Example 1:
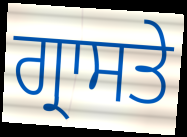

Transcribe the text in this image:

ਗ੍ਰਾਸਤੇ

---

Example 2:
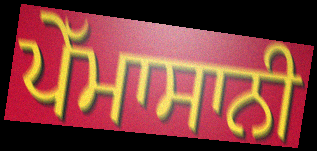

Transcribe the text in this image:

ਪੇੱਮਾਸਾਨੀ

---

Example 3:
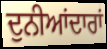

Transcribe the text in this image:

ਦੁਨੀਆਂਦਾਰਾਂ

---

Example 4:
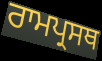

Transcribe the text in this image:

ਰਾਮਪ੍ਰਸਥ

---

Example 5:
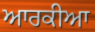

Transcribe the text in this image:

ਆਰਕੀਆ